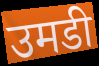
उमडी